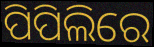
ପିପିଲିରେ